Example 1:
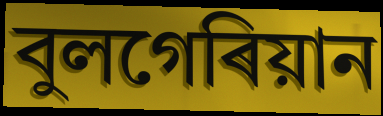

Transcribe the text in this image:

বুলগেৰিয়ান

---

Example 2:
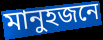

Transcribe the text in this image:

মানুহজনে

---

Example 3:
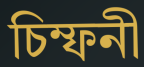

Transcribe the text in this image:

চিম্ফনী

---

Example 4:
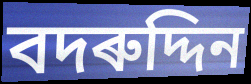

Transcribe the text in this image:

বদৰুদ্দিন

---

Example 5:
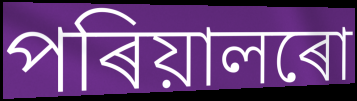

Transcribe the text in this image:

পৰিয়ালৰো